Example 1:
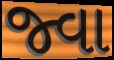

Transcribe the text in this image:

જ્વા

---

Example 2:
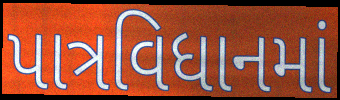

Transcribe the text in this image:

પાત્રવિધાનમાં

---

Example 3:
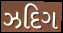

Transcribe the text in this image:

ઝદિગ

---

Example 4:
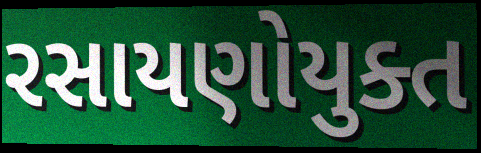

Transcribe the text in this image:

રસાયણોયુક્ત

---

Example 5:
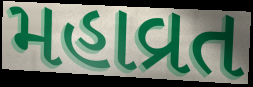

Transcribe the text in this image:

મહાવ્રત